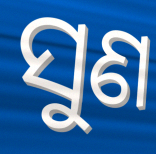
ସୁଣ